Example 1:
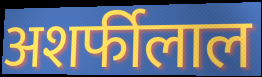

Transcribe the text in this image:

अशर्फीलाल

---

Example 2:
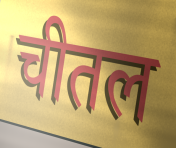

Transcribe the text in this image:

चीतल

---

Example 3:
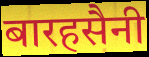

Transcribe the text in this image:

बारहसैनी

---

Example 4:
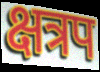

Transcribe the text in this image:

क्षत्रप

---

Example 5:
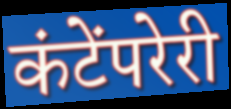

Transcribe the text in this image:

कंटेंपरेरी